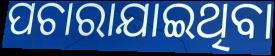
ପଚାରାଯାଇଥିବା